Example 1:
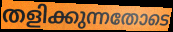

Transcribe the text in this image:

തളിക്കുന്നതോടെ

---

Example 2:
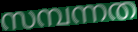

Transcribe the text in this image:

സമ്പന്നത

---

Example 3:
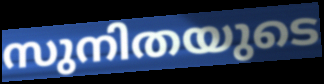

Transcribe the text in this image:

സുനിതയുടെ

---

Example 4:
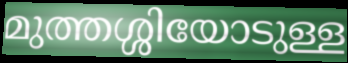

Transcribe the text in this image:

മുത്തശ്ശിയോടുള്ള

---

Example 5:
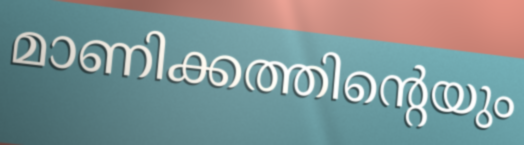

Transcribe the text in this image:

മാണിക്കത്തിന്റെയും